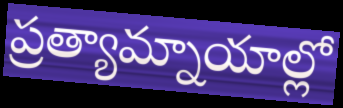
ప్రత్యామ్నాయాల్లో